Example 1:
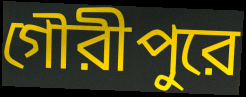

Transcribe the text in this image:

গৌরীপুরে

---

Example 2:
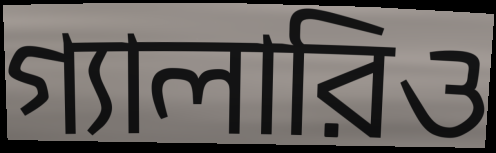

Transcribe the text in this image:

গ্যালারিও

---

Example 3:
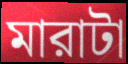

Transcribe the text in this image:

মারাটা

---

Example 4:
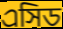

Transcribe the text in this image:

এসিড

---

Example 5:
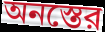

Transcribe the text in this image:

অনস্তের